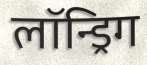
लॉन्ड्रिग